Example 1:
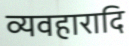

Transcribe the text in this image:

व्यवहारादि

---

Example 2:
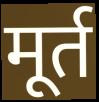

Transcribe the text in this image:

मूर्त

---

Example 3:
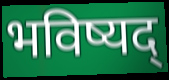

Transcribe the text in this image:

भविष्यद्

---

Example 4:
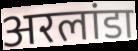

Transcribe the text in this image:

अरलांडा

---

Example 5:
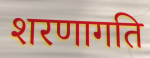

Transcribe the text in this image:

शरणागति